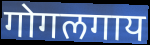
गोगलगाय